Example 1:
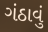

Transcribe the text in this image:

ગંઠાવું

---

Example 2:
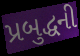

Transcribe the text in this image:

પ્રબુદ્ધની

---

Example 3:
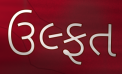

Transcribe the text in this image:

ઉલ્ફત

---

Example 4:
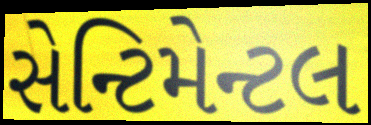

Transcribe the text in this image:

સેન્ટિમેન્ટલ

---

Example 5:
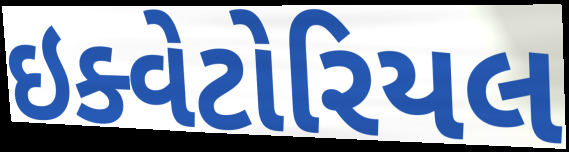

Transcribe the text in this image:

ઇક્વેટોરિયલ